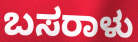
ಬಸರಾಳು